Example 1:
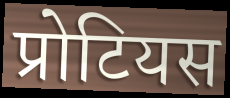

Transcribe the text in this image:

प्रोटियस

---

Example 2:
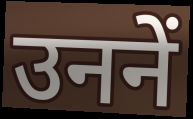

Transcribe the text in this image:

उननें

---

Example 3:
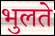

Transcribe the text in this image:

भुलते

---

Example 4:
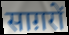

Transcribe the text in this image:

साग़रों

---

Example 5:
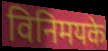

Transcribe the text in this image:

विनिमयके